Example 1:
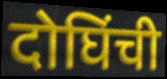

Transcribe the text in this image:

दोघिंची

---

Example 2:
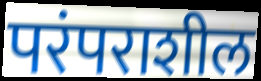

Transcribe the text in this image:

परंपराशील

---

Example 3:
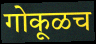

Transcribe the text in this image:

गोकूळच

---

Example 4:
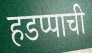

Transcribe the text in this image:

हडप्पाची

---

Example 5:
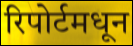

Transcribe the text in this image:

रिपोर्टमधून